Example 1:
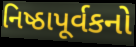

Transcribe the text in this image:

નિષ્ઠાપૂર્વકનો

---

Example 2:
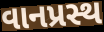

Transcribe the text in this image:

વાનપ્રસ્થ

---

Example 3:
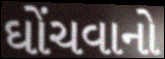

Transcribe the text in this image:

ઘોંચવાનો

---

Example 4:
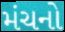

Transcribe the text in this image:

મંચનો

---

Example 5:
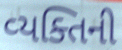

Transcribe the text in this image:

વ્‍યક્તિની